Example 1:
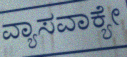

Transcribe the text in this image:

ವ್ಯಾಸವಾಕ್ಯೇ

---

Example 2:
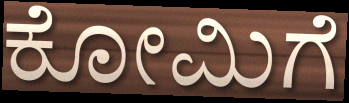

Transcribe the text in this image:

ಕೋಮಿಗೆ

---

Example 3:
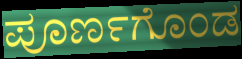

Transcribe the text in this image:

ಪೂರ್ಣಗೊಂಡ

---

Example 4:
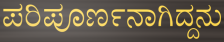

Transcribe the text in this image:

ಪರಿಪೂರ್ಣನಾಗಿದ್ದನು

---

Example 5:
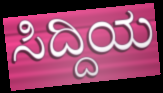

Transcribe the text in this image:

ಸಿದ್ದಿಯ